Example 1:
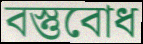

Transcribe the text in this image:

বস্তুবোধ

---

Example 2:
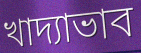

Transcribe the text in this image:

খাদ্যাভাব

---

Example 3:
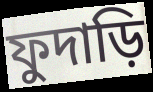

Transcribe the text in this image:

ফুদাড়ি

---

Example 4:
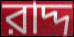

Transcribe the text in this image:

রাদ্দ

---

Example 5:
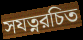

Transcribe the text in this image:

সযত্নরচিত